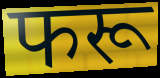
फरू